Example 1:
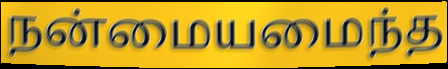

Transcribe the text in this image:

நன்மையமைந்த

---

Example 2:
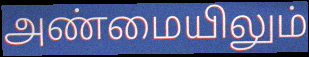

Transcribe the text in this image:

அண்மையிலும்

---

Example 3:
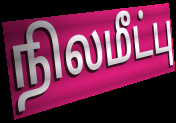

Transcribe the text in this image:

நிலமீட்பு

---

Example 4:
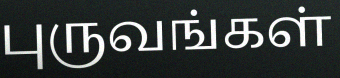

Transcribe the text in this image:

புருவங்கள்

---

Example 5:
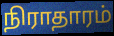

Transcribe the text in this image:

நிராதாரம்